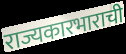
राज्यकारभाराची